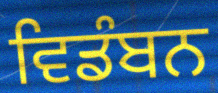
ਵਿਡੰਬਨ